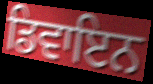
ਡਿਵਾਇਨ